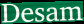
Desam